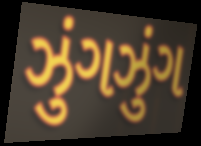
ઝુંગઝુંગ